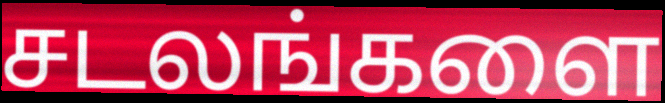
சடலங்களை